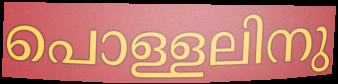
പൊള്ളലിനു